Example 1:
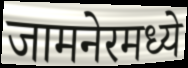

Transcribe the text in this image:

जामनेरमध्ये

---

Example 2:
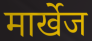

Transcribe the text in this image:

मार्खेज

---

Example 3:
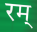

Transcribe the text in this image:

रम्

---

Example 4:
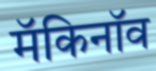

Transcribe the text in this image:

मॅकिनॉव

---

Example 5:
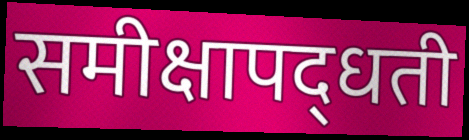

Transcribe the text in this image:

समीक्षापद्धती